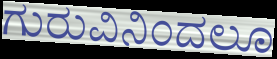
ಗುರುವಿನಿಂದಲೂ